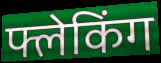
फ्लेकिंग